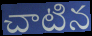
చాటిన